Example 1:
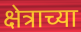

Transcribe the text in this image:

क्षेत्राच्या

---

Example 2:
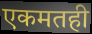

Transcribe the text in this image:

एकमतही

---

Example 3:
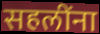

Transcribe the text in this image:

सहलींना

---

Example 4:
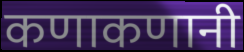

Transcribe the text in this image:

कणाकणानी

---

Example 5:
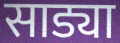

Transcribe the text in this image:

साड्या